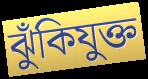
ঝুঁকিযুক্ত